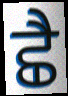
ਛੈ